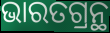
ଭାରତଗ୍ରନ୍ଥ